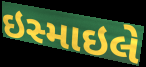
ઇસ્માઇલે